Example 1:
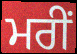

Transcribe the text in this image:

ਮਰੀਂ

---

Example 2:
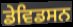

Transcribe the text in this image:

ਡੇਵਿਡਸਨ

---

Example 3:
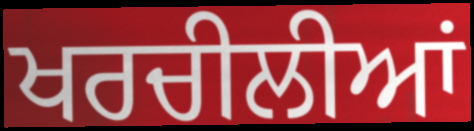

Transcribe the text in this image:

ਖਰਚੀਲੀਆਂ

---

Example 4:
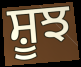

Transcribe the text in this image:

ਸ਼ੂਝ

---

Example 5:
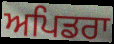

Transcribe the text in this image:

ਅਪਿਡਰਾ